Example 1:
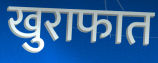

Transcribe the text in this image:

खुराफात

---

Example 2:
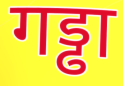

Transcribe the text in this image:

गड्ढा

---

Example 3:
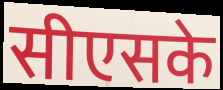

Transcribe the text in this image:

सीएसके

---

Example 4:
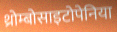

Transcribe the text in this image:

थ्रोम्बोसाइटोपेनिया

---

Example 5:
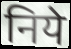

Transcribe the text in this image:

निये